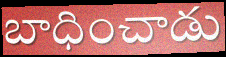
బాధించాడు